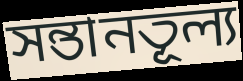
সন্তানতূল্য